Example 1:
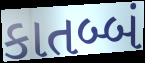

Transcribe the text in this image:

કાતબ્બં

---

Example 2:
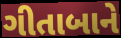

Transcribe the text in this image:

ગીતાબાને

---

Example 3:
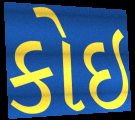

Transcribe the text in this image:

કોઇ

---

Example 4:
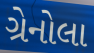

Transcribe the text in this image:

ગ્રેનોલા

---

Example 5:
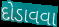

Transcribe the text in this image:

દોડાવવા